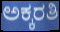
ಅಕ್ಕರತಿ